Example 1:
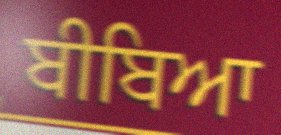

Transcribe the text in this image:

ਬੀਬਿਆ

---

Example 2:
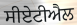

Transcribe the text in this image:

ਸੀਏਟੀਐਲ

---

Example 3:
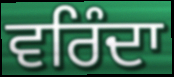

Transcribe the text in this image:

ਵਰਿੰਦਾ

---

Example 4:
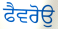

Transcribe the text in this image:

ਫੈਵਰੋਉ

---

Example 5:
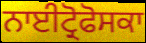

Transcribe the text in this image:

ਨਾਈਟ੍ਰੋਫੋਸਕਾ